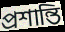
প্ৰশান্তি